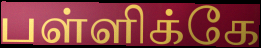
பள்ளிக்கே